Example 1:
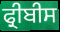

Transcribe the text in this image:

ਫ੍ਰੀਬੀਸ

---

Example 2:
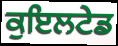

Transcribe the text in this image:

ਕੁਇਲਟੇਡ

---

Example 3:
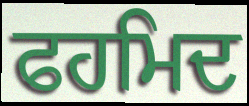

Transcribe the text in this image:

ਫਹਮਿਦ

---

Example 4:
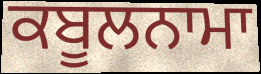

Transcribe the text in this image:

ਕਬੂਲਨਾਮਾ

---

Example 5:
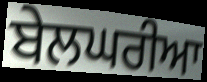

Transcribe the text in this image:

ਬੇਲਘਰੀਆ